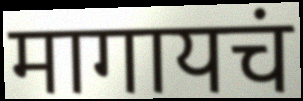
मागायचं